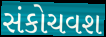
સંકોચવશ